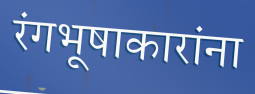
रंगभूषाकारांना